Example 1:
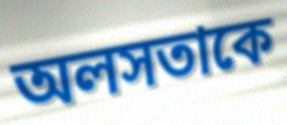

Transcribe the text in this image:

অলসতাকে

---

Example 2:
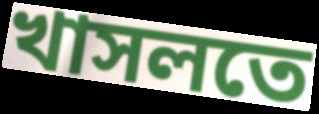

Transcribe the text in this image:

খাসলতে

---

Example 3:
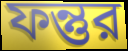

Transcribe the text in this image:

ফন্তুর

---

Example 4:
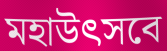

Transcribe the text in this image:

মহাউৎসবে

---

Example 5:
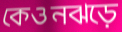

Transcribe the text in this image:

কেওনঝড়ে